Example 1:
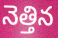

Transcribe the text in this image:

నెత్తిన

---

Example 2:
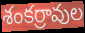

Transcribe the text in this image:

శంకర్రావుల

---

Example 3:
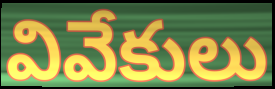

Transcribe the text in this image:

వివేకులు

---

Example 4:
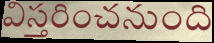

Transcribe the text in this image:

విస్తరించనుంది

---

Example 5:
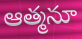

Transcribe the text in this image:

ఆత్మనూ